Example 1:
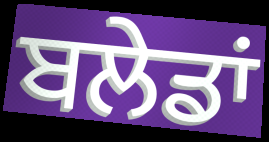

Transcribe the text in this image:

ਬਲੇਡਾਂ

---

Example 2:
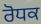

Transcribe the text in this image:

ਰੋਧਕ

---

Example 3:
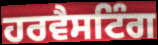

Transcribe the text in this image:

ਹਰਵੈਸਟਿੰਗ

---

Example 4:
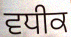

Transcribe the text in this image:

ਵਧੀਕ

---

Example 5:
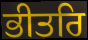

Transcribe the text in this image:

ਭੀਤਰਿ